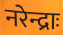
नरेन्द्राः